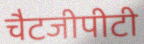
चैटजीपीटी